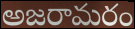
అజరామరం